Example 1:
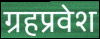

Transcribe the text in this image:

ग्रहप्रवेश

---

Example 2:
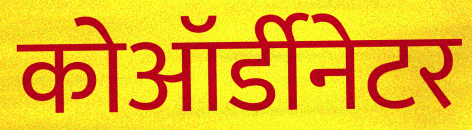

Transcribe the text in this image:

कोऑर्डीनेटर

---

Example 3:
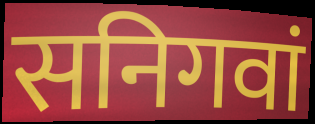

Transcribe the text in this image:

सनिगवां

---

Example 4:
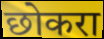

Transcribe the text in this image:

छोकरा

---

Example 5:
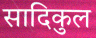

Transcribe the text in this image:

सादिकुल